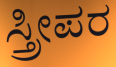
ಸ್ತ್ರೀಪರ